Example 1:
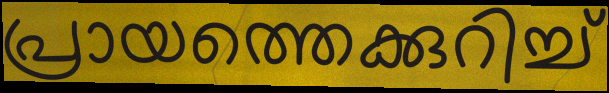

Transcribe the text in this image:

പ്രായത്തെക്കുറിച്ച്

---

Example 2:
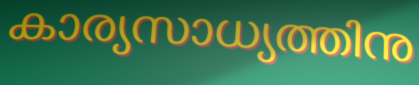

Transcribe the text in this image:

കാര്യസാധ്യത്തിനു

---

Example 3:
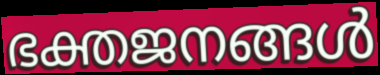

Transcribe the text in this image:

ഭക്തജനങ്ങൾ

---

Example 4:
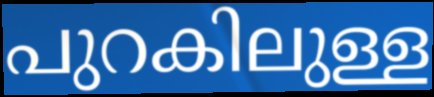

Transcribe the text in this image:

പുറകിലുള്ള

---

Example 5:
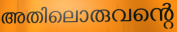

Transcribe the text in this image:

അതിലൊരുവന്റെ